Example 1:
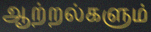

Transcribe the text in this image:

ஆற்றல்களும்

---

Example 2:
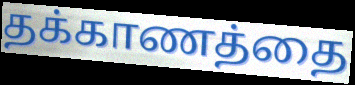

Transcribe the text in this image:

தக்காணத்தை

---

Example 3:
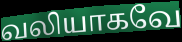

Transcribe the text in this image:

வலியாகவே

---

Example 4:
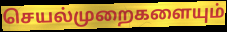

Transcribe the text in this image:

செயல்முறைகளையும்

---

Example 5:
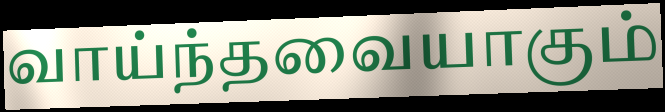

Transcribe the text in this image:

வாய்ந்தவையாகும்